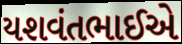
યશવંતભાઈએ